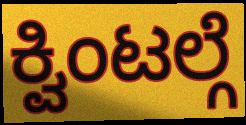
ಕ್ವಿಂಟಲ್ಗೆ